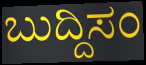
ಬುದ್ದಿಸಂ